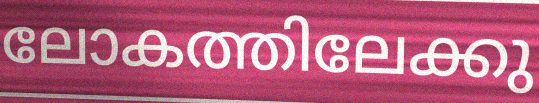
ലോകത്തിലേക്കു